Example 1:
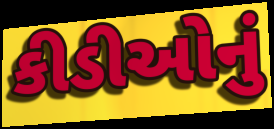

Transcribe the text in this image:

કીડીઓનું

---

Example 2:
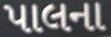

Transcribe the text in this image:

પાલના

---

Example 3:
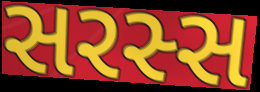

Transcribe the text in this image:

સરસ્સ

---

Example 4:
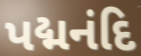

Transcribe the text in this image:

પદ્મનંદિ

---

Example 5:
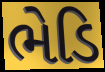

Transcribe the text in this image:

ભેડિ